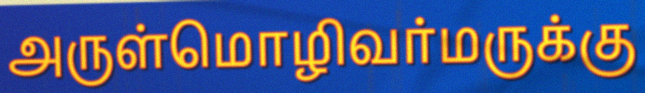
அருள்மொழிவர்மருக்கு